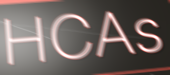
HCAs